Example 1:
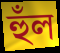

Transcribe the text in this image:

হুঁল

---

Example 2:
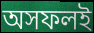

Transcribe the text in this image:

অসফলই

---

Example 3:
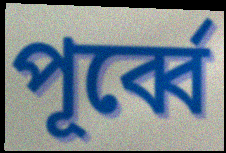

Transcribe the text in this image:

পূর্ব্বে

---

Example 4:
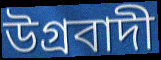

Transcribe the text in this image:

উগ্রবাদী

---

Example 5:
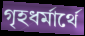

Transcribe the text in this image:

গৃহধর্মার্থে